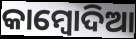
କାମ୍ବୋଦିଆ